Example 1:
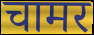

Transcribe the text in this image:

चामर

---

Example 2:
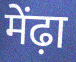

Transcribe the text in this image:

मेंढ़ा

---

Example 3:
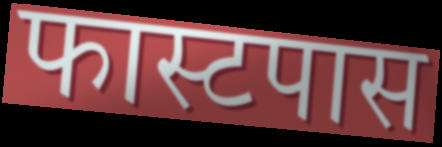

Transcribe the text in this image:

फास्टपास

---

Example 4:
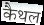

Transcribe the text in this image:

कैथल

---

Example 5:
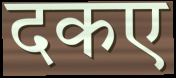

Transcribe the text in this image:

दकए